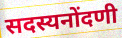
सदस्यनोंदणी